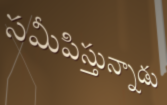
సమీపిస్తున్నాడు